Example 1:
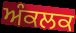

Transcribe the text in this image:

ਅੰਕਲਕ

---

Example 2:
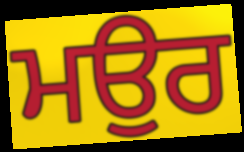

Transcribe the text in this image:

ਮਉਰ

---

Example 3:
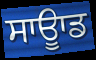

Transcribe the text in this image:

ਸਾਊਾਡ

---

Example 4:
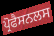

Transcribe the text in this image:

ਪ੍ਰੋਫੈਸਨਲਸ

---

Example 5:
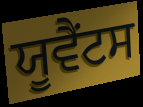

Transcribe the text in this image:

ਯੂਵੈਂਟਸ